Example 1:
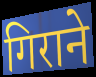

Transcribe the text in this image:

गिराने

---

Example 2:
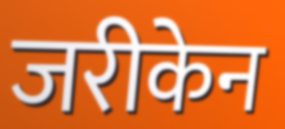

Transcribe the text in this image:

जरीकेन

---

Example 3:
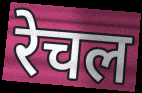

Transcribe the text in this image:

रेचल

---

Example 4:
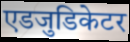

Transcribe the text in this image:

एडजुडिकेटर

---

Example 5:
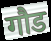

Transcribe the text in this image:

गौड